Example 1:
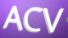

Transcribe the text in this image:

ACV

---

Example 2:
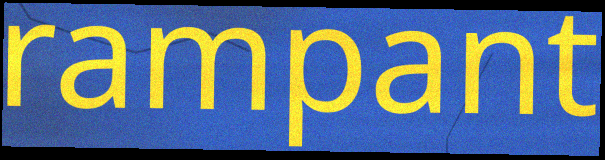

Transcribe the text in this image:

rampant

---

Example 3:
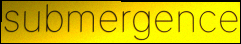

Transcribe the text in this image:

submergence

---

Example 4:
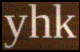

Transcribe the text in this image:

yhk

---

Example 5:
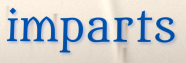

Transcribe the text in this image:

imparts